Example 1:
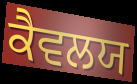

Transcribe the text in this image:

ਕੈਵਲਯ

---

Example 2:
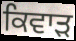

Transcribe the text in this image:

ਕਿਵਾੜ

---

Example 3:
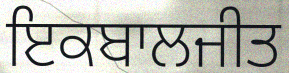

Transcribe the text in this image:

ਇਕਬਾਲਜੀਤ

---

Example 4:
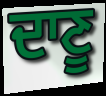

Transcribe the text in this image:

ਦਾਣੂ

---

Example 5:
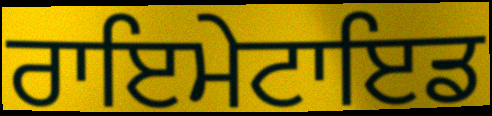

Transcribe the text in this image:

ਰਾਇਮੇਟਾਇਡ